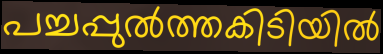
പച്ചപ്പുൽത്തകിടിയിൽ